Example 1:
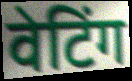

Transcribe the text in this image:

वेटिंग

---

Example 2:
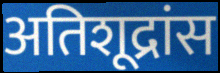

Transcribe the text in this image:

अतिशूद्रांस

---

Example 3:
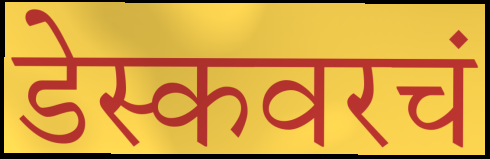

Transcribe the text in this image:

डेस्कवरचं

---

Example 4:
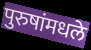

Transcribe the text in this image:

पुरुषांमधले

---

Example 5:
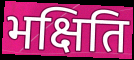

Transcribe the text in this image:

भक्षिति